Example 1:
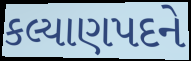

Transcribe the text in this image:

કલ્યાણપદને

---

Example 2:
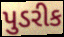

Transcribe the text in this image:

પુડરીક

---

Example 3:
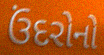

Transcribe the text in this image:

ઉંદરોનો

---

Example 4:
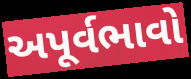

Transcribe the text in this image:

અપૂર્વભાવો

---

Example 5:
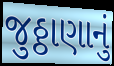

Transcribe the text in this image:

જુઠ્ઠાણાનું